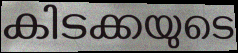
കിടക്കയുടെ